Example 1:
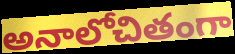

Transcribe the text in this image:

అనాలోచితంగా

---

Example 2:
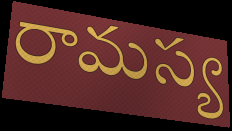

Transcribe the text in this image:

రామస్య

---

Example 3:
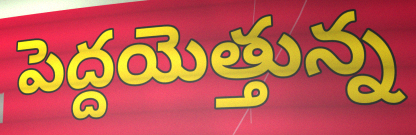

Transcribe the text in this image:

పెద్దయెత్తున్న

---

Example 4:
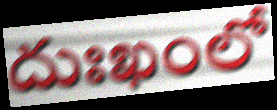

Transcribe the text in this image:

దుఃఖంలో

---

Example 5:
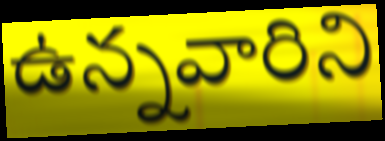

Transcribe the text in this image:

ఉన్నవారిని